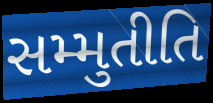
સમ્મુતીતિ